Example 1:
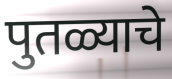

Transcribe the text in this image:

पुतळ्याचे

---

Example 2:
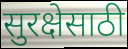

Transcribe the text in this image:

सुरक्षेसाठी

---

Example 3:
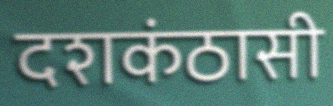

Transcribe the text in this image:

दशकंठासी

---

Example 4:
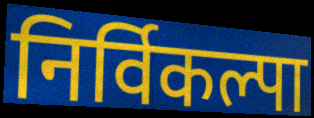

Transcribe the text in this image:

निर्विकल्पा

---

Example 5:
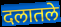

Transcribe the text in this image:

दलातले